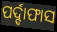
ପର୍ଦ୍ଦାଫାସ